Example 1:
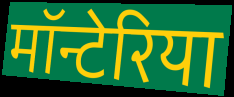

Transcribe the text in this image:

मॉन्टेरिया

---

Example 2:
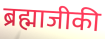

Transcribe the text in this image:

ब्रह्माजीकी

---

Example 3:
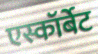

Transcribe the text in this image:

एस्कॉर्बेट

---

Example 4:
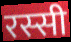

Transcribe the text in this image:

रस्‍सी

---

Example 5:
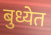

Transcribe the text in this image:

बुध्येत